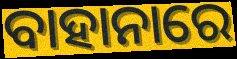
ବାହାନାରେ